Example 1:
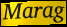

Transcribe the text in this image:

Marag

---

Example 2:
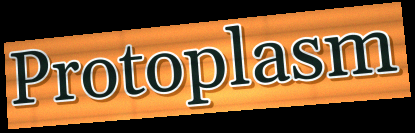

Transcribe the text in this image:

Protoplasm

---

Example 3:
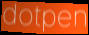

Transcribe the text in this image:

dotpen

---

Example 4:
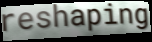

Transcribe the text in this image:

reshaping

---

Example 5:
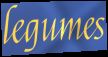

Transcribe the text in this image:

legumes